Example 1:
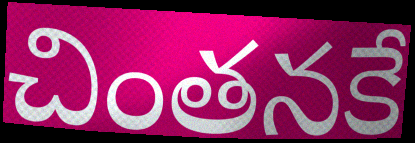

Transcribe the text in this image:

చింతనకే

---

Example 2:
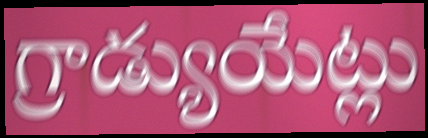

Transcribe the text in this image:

గ్రాడ్యుయేట్లు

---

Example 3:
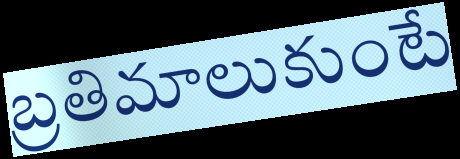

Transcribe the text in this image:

బ్రతిమాలుకుంటే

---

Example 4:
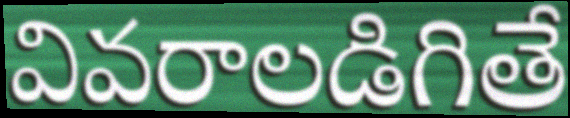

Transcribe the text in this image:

వివరాలడిగితే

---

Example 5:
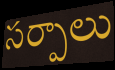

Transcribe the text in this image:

సర్పాలు